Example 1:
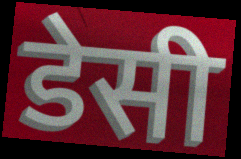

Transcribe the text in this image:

डेसी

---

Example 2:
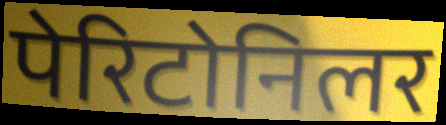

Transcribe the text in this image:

पेरिटोनिलर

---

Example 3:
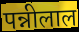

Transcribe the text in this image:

पन्नीलाल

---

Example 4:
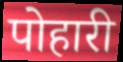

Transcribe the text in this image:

पोहारी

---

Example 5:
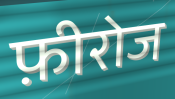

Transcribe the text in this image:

फ़ीरोज